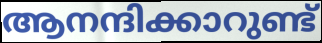
ആനന്ദിക്കാറുണ്ട്